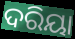
ଦରିୟା